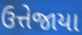
ઉત્તેજાયા